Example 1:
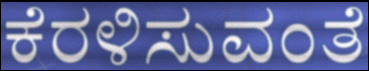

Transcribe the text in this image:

ಕೆರಳಿಸುವಂತೆ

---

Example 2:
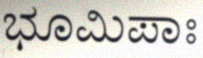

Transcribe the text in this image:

ಭೂಮಿಪಾಃ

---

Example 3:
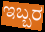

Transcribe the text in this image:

ಇಬ್ಬರ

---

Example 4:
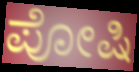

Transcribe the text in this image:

ಪೋಷಿ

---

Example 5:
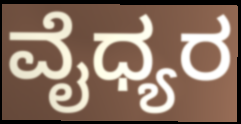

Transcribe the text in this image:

ವೈಧ್ಯರ